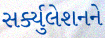
સર્ક્યુલેશનને